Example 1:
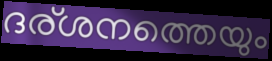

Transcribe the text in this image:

ദര്ശനത്തെയും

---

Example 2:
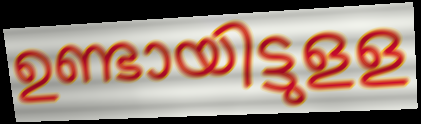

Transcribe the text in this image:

ഉണ്ടായിട്ടുളള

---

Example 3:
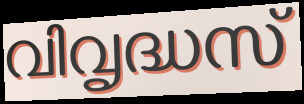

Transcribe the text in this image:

വിവൃദ്ധസ്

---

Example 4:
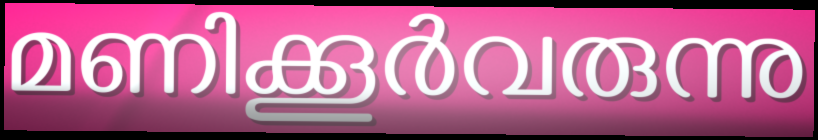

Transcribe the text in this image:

മണിക്കൂർവരുന്നു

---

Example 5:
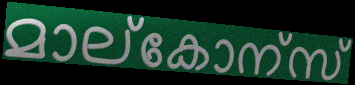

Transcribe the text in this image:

മാല്കോന്സ്